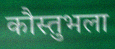
कौस्तुभला